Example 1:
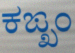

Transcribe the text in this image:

ಕಙ್ಖಂ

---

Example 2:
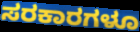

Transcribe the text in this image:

ಸರಕಾರಗಳೂ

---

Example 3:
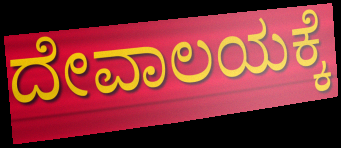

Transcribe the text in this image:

ದೇವಾಲಯಕ್ಕೆ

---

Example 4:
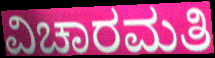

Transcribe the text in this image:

ವಿಚಾರಮತಿ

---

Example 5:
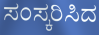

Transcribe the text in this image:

ಸಂಸ್ಕರಿಸಿದ